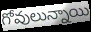
గోవులున్నాయి